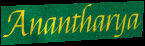
Anantharya